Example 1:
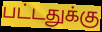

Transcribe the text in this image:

பட்டதுக்கு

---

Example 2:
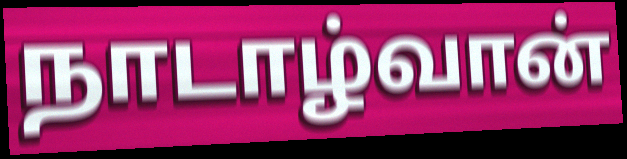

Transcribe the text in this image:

நாடாழ்வான்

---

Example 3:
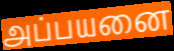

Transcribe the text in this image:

அப்பயனை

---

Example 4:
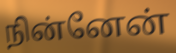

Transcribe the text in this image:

நின்னேன்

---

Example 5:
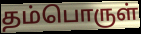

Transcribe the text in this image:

தம்பொருள்